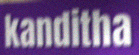
kanditha